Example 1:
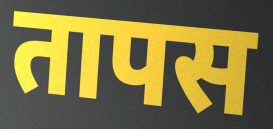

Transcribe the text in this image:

तापस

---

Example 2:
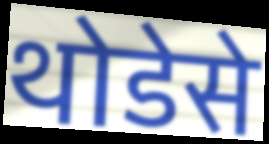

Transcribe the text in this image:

थोडेसे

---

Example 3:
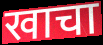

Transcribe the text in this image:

खाचा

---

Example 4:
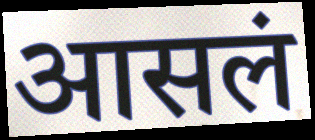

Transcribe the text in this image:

आसलं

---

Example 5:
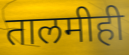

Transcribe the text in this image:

तालमीही